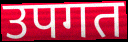
उपगत